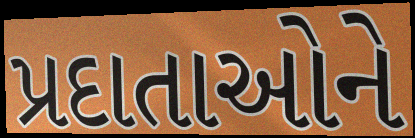
પ્રદાતાઓને